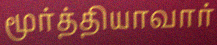
மூர்த்தியாவார்